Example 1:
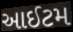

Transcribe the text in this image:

આઈટમ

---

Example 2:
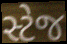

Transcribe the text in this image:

સ્ટેજ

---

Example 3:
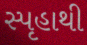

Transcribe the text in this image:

સ્પૃહાથી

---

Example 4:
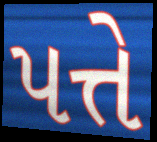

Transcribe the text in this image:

પત્તે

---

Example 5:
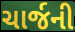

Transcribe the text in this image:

ચાર્જની